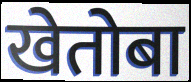
खेतोबा